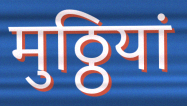
मुठ्ठियां